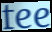
tee